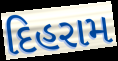
દિહરામ